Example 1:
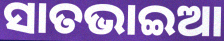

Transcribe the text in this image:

ସାତଭାଇଆ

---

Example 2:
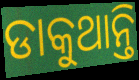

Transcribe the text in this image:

ଡାକୁଥାନ୍ତି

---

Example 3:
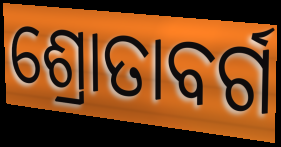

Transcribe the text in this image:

ଶ୍ରୋତାବର୍ଗ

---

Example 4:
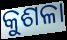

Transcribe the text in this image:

କୁଶଳା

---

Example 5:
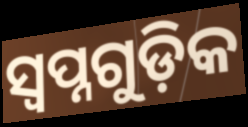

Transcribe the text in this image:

ସ୍ଵପ୍ନଗୁଡ଼ିକ